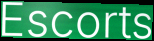
Escorts